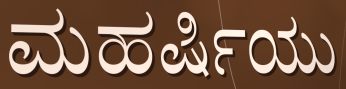
ಮಹರ್ಷಿಯು